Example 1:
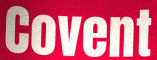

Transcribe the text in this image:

Covent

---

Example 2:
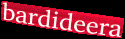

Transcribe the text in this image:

bardideera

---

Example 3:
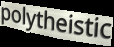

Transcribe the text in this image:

polytheistic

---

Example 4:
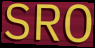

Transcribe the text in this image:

SRO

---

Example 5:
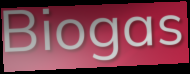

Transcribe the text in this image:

Biogas